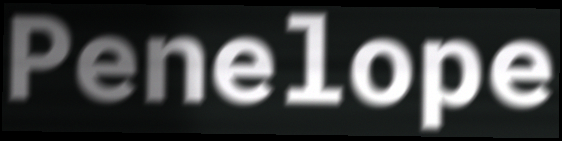
Penelope